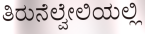
ತಿರುನೆಲ್ವೇಲಿಯಲ್ಲಿ